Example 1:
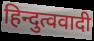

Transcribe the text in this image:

हिन्दुत्ववादी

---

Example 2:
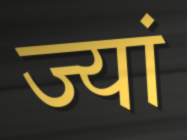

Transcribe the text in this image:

ज्यां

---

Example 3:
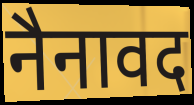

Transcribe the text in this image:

नैनावद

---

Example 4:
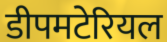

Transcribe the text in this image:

डीपमटेरियल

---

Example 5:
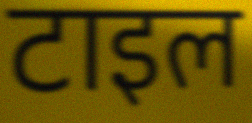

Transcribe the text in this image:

टाइल